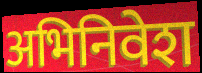
अभिनिवेश